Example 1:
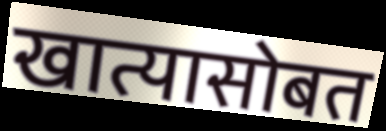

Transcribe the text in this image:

खात्यासोबत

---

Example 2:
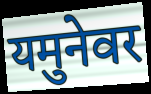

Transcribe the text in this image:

यमुनेवर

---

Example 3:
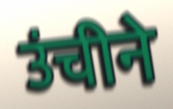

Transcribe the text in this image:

उंचीने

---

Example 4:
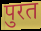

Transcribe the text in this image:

पुरत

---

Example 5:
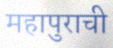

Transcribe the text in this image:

महापुराची